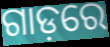
ଗାଡ଼ରେ